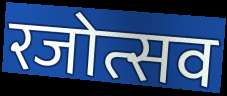
रजोत्सव